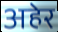
अहेर